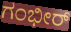
ಗಂಭೀರ್